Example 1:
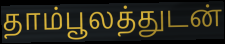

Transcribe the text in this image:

தாம்பூலத்துடன்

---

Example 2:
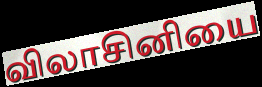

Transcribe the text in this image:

விலாசினியை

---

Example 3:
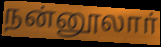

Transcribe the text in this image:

நன்னூலார்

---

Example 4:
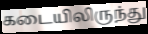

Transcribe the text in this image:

கடையிலிருந்து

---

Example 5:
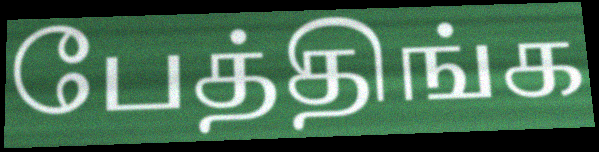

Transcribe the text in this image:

பேத்திங்க